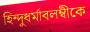
হিন্দুধর্মাবলম্বীকে